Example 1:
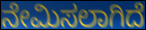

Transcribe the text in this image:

ನೇಮಿಸಲಾಗಿದೆ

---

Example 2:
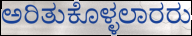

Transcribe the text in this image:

ಅರಿತುಕೊಳ್ಳಲಾರರು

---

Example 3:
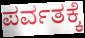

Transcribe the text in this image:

ಪರ್ವತಕ್ಕೆ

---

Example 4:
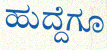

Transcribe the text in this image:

ಹುದ್ದೆಗೂ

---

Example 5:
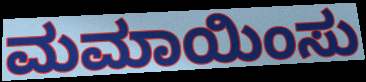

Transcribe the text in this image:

ಮಮಾಯಿಂಸು